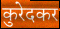
कुरेदकर